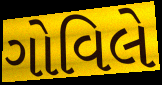
ગોવિલે